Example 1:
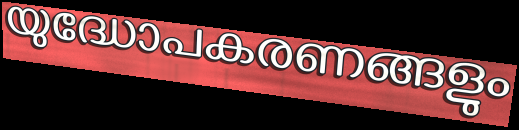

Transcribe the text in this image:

യുദ്ധോപകരണങ്ങളും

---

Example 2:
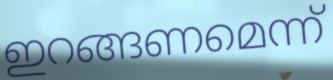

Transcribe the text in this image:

ഇറങ്ങണമെന്ന്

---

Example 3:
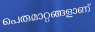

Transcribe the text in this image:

പെരുമാറ്റങ്ങളാണ്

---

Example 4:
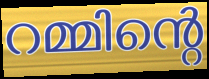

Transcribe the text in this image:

റമ്മിന്റെ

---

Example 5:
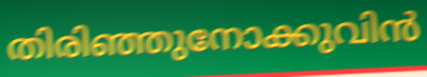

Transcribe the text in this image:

തിരിഞ്ഞുനോക്കുവിൻ